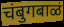
चंबुगबाळं